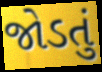
જોડતું